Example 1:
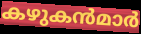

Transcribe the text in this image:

കഴുകൻമാർ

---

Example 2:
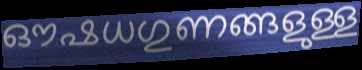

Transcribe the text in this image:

ഔഷധഗുണങ്ങളുള്ള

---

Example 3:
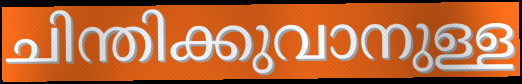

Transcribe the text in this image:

ചിന്തിക്കുവാനുള്ള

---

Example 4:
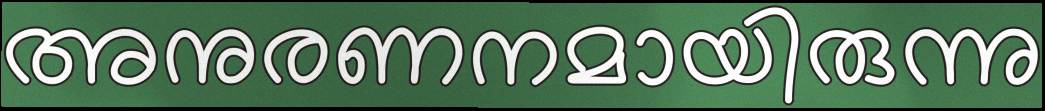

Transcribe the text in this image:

അനുരണനമായിരുന്നു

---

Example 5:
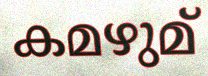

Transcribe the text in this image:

കമഴുമ്